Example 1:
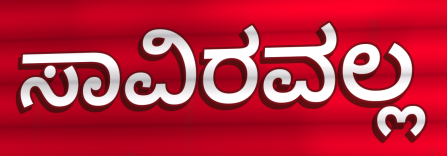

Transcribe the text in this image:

ಸಾವಿರವಲ್ಲ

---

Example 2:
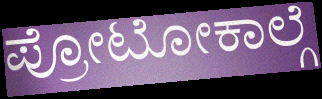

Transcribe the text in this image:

ಪ್ರೋಟೋಕಾಲ್ಗೆ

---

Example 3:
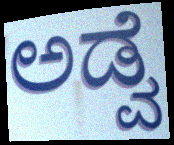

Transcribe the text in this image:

ಅಡ್ವೆ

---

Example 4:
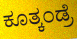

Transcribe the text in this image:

ಕೂತ್ಕಂಡ್ರೆ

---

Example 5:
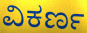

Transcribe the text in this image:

ವಿಕರ್ಣ